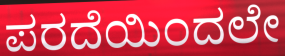
ಪರದೆಯಿಂದಲೇ